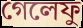
গেলেফু